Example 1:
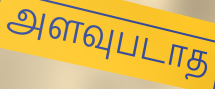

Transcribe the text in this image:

அளவுபடாத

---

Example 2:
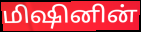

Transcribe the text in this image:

மிஷினின்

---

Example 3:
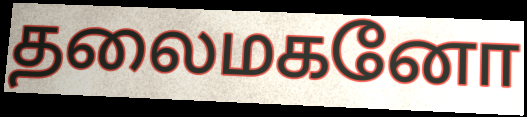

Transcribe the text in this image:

தலைமகனோ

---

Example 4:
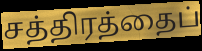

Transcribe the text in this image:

சத்திரத்தைப்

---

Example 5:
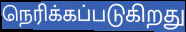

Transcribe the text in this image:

நெரிக்கப்படுகிறது